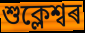
শুক্লেশ্বৰ